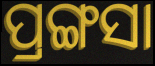
ପ୍ରଙ୍ଗସା